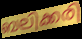
ബലിക്കരി